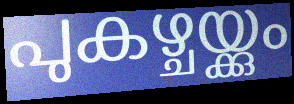
പുകഴ്ചയ്ക്കും